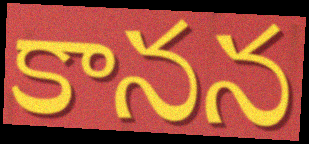
కానన